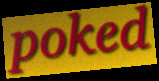
poked